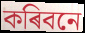
কৰিবনে